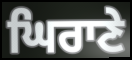
ਘਿਰਾਣੇ